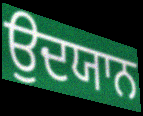
ਉਦਯਾਨ